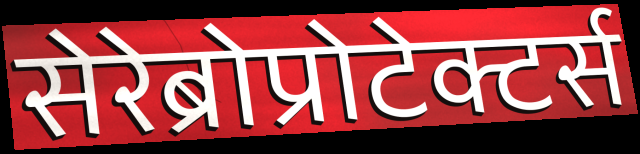
सेरेब्रोप्रोटेक्टर्स